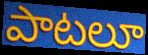
పాటలూ